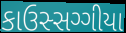
કાઉસ્સગ્ગીયા